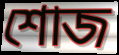
শোজ